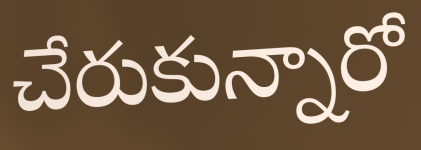
చేరుకున్నారో